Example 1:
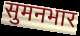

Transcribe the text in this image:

सुमनभार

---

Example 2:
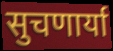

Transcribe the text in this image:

सुचणार्या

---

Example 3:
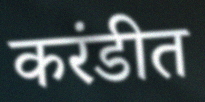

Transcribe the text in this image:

करंडीत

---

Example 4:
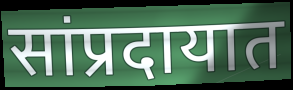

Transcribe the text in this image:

सांप्रदायात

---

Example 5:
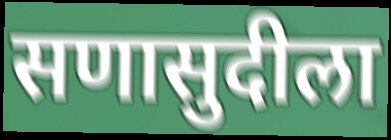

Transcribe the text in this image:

सणासुदीला